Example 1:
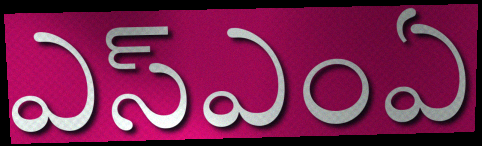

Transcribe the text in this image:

ఎస్ఎంఏ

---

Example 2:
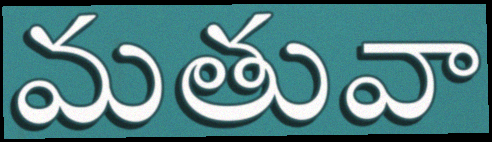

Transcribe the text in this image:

మతువా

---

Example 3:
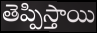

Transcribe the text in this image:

తెప్పిస్తాయి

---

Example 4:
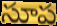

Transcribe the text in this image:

సూప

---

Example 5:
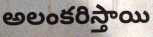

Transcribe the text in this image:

అలంకరిస్తాయి